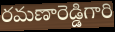
రమణారెడ్డిగారి